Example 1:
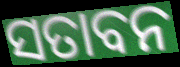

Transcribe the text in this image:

ସତାବନ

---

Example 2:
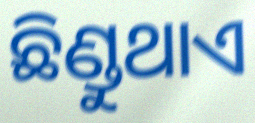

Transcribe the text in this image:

ଛିଣ୍ଡୁଥାଏ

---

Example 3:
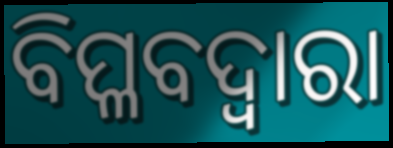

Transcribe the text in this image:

ବିପ୍ଳବଦ୍ୱାରା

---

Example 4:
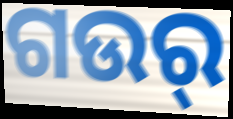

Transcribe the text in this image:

ଗଉର୍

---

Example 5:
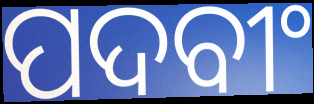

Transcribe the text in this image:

ପଦବୀଂ